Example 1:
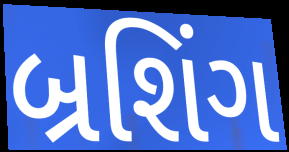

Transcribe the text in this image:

બ્રશિંગ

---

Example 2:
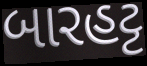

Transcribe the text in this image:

બારહટ્ટ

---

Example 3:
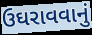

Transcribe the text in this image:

ઉઘરાવવાનું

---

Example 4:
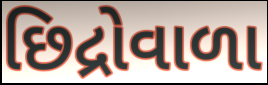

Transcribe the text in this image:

છિદ્રોવાળા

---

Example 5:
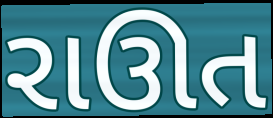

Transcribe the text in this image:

રાઊત